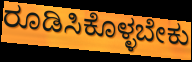
ರೂಡಿಸಿಕೊಳ್ಳಬೇಕು